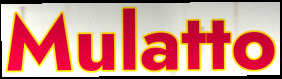
Mulatto